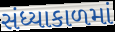
સંધ્યાકાળમાં